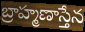
బ్రాహ్మణాస్తేన